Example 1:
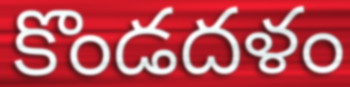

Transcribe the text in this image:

కొండదళం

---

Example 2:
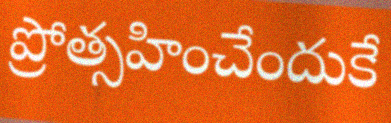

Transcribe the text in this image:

ప్రోత్సహించేందుకే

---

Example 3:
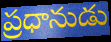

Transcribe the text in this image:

ప్రధానుడు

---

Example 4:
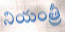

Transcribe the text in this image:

నియంత్రీ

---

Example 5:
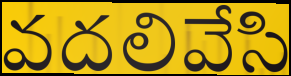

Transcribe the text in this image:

వదలివేసి